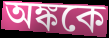
অঙ্ককে